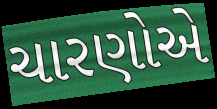
ચારણોએ